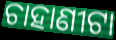
ଚାହାଣୀଟା